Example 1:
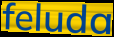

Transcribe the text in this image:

feluda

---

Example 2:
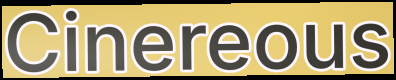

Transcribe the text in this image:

Cinereous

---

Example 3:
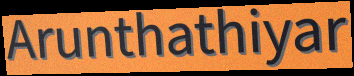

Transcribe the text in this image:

Arunthathiyar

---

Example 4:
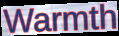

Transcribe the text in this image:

Warmth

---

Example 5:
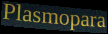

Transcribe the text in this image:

Plasmopara